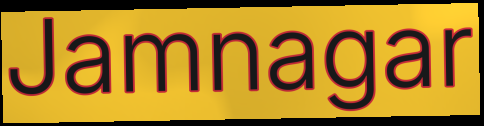
Jamnagar